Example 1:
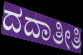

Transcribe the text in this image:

ದದಾತೀತಿ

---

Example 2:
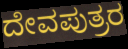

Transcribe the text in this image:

ದೇವಪುತ್ರರ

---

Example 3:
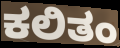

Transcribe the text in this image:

ಕಲಿತಂ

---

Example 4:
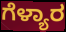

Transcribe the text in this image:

ಗೆಳ್ಯಾರ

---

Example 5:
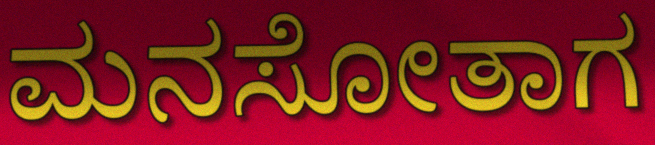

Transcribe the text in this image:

ಮನಸೋತಾಗ